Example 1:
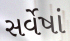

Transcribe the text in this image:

સર્વેષાં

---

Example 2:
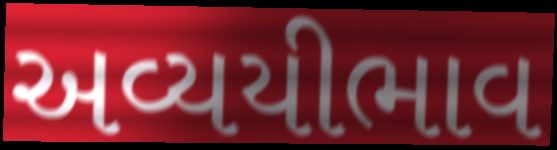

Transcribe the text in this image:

અવ્યયીભાવ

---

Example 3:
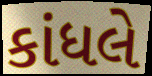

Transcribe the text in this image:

કાંધલે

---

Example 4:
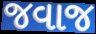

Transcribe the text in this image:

જવાજ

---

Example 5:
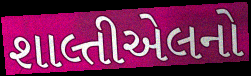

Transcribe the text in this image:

શાલ્તીએલનો